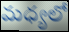
మధ్యలో